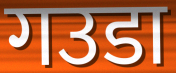
गउडा